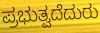
ಪ್ರಭುತ್ವದೆದುರು